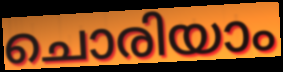
ചൊരിയാം